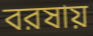
বরষায়